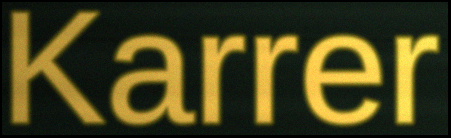
Karrer